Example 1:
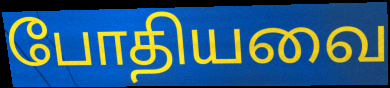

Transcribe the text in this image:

போதியவை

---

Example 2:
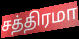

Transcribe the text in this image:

சத்திரமா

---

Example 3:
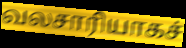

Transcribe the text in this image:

வலசாரியாகச்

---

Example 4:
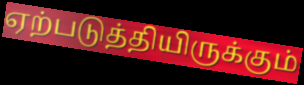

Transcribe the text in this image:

ஏற்படுத்தியிருக்கும்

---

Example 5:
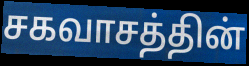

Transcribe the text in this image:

சகவாசத்தின்